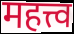
महत्त्व